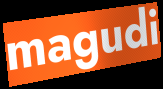
magudi